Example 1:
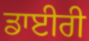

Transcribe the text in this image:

ਡਾਈਰੀ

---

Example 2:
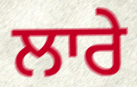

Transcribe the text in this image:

ਲਾਰੇ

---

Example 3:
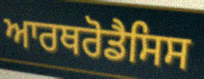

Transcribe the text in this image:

ਆਰਥਰੋਡੈਸਿਸ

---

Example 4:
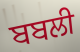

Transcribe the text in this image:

ਬਬਲੀ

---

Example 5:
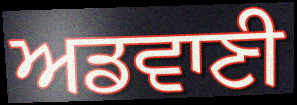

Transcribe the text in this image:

ਅਡਵਾਣੀ